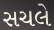
સચલે